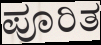
ಪೂರಿತ